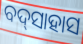
ବଦ୍‌ସାହାସ